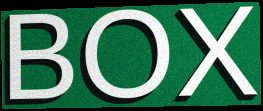
BOX